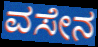
ವಸೇನ